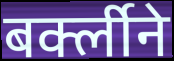
बर्क्लीने